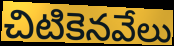
చిటికెనవేలు